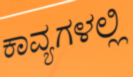
ಕಾವ್ಯಗಳಲ್ಲಿ